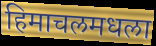
हिमाचलमधला